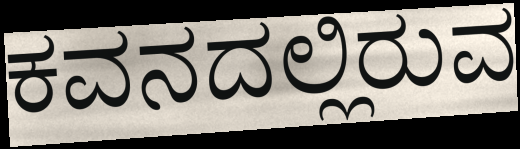
ಕವನದಲ್ಲಿರುವ